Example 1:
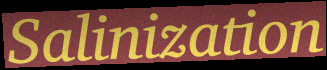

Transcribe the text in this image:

Salinization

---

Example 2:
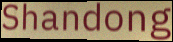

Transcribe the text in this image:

Shandong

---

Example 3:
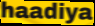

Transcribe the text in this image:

haadiya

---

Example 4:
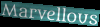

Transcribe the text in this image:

Marvellous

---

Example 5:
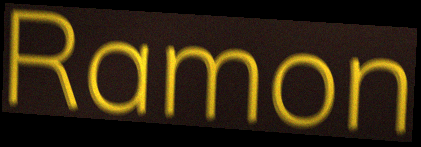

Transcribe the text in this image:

Ramon